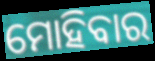
ମୋହିବାର